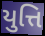
યુત્તિ